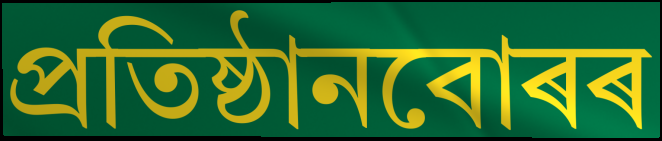
প্ৰতিষ্ঠানবোৰৰ